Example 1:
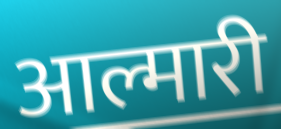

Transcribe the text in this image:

आल्मारी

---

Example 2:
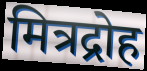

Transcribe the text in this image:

मित्रद्रोह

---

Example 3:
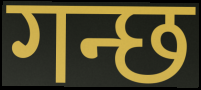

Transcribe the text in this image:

गन्छ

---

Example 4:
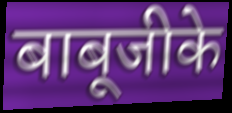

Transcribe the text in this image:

बाबूजीके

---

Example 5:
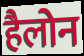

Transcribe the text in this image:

हैलोन